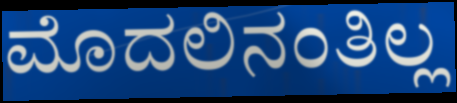
ಮೊದಲಿನಂತಿಲ್ಲ